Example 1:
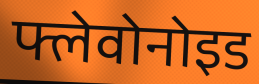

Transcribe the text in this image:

फ्लेवोनोइड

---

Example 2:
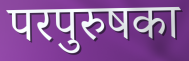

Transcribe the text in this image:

परपुरुषका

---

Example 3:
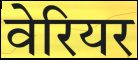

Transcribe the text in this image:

वेरियर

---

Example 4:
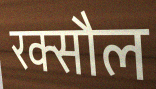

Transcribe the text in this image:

रक्सौल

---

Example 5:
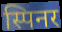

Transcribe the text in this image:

स्पिनर